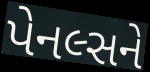
પેનલ્સને